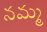
నమ్మ